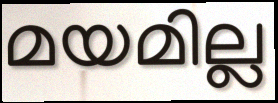
മയമില്ല